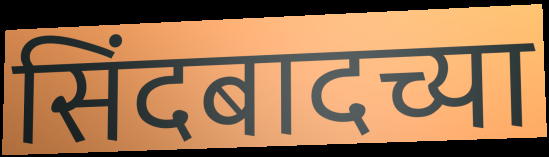
सिंदबादच्या